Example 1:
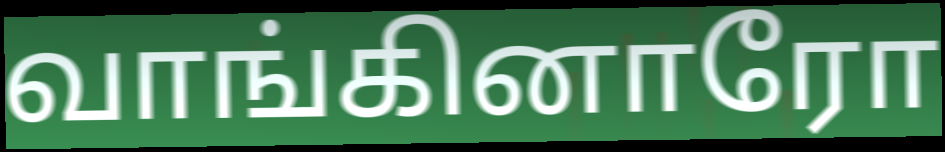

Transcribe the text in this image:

வாங்கினாரோ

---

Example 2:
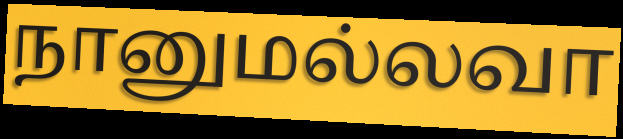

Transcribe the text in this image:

நானுமல்லவா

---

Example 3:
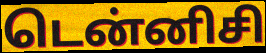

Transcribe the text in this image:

டென்னிசி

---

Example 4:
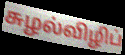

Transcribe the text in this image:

சுழல்விழிப்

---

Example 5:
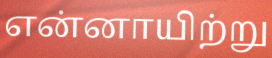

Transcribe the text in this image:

என்னாயிற்று